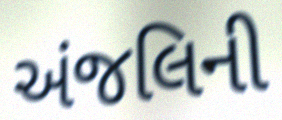
અંજલિની